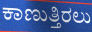
ಕಾಣುತ್ತಿರಲು